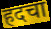
हदचा